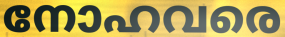
നോഹവരെ